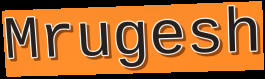
Mrugesh